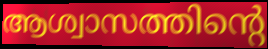
ആശ്വാസത്തിന്റെ